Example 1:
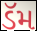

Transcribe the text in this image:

ડૅમ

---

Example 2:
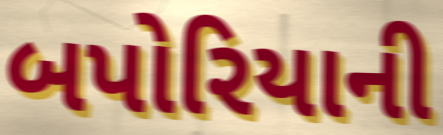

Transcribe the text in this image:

બપોરિયાની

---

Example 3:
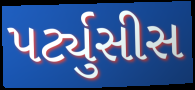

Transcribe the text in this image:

પર્ટ્યુસીસ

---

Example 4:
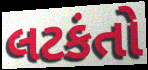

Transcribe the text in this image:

લટકંતો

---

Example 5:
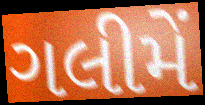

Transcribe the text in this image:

ગલીમેં